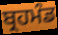
ਬ੍ਰਹਮੰਡ